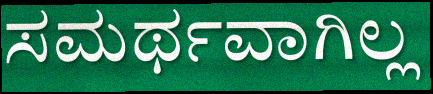
ಸಮರ್ಥವಾಗಿಲ್ಲ